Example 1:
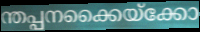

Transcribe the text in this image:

ന്തപ്പനക്കൈയ്ക്കോ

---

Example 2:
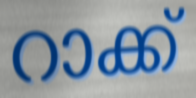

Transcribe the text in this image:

റാക്ക്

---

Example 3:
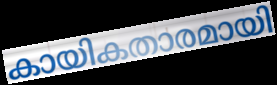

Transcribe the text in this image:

കായികതാരമായി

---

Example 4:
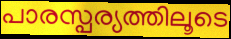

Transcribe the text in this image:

പാരസ്പര്യത്തിലൂടെ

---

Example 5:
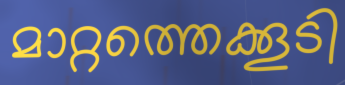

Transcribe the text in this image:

മാറ്റത്തെക്കൂടി